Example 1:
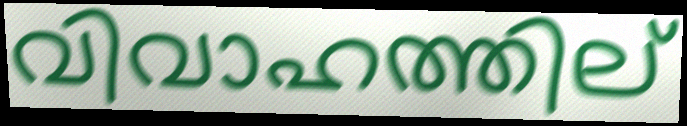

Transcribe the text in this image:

വിവാഹത്തില്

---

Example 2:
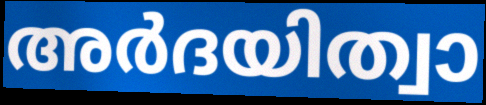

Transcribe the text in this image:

അർദയിത്വാ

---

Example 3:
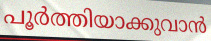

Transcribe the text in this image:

പൂർത്തിയാക്കുവാൻ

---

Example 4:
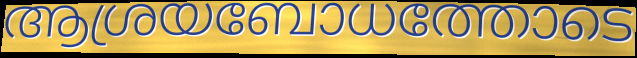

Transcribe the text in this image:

ആശ്രയബോധത്തോടെ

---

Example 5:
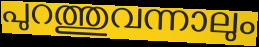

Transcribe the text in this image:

പുറത്തുവന്നാലും